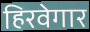
हिरवेगार